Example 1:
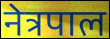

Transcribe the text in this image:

नेत्रपाल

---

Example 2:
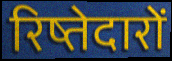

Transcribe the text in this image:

रिष्तेदारों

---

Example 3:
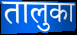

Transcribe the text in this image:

तालुका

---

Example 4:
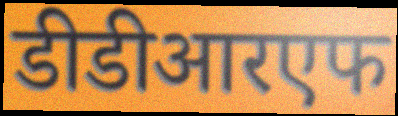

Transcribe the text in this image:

डीडीआरएफ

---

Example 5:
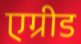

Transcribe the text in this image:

एग्रीड